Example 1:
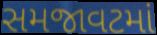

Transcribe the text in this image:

સમજાવટમાં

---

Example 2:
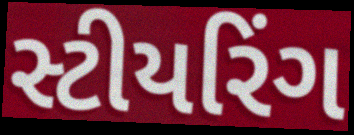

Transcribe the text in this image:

સ્ટીયરિંગ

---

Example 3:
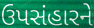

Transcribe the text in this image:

ઉપસંહારને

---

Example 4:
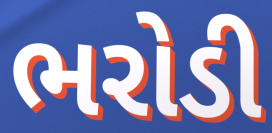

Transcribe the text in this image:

ભરોડી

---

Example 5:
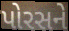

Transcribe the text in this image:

પોરસને